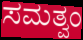
ಸಮತ್ವಂ